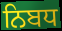
ਨਿਬਧ